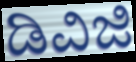
ಡಿವಿಜಿ